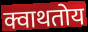
क्वाथतोय